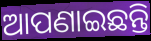
ଆପଣାଇଛନ୍ତି